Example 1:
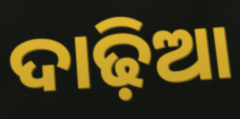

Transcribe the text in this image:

ଦାଢ଼ିଆ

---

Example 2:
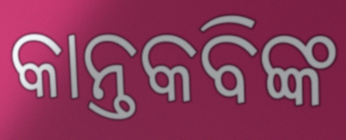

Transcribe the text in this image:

କାନ୍ତକବିଙ୍କ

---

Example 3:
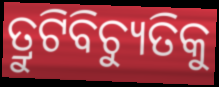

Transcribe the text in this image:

ତ୍ରୁଟିବିଚ୍ୟୁତିକୁ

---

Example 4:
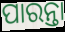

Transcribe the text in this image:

ପାରନ୍ତା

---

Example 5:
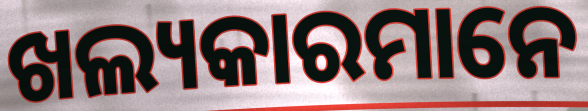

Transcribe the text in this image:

ଖଲ୍ୟକାରମାନେ